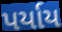
પર્યાય